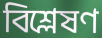
বিশ্লেষণ